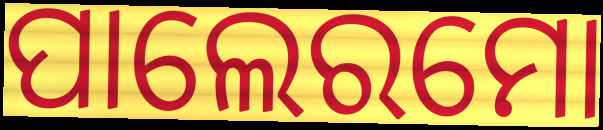
ପାଲେରମୋ